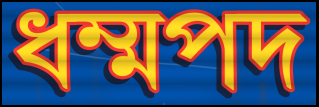
ধম্মপদ